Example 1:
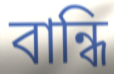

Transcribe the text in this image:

বান্ধি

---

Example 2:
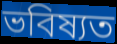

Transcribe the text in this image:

ভবিষ্যত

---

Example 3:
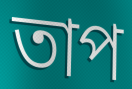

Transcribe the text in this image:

তাপ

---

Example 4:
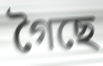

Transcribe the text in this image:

গৈছে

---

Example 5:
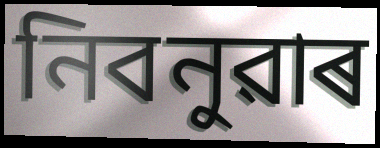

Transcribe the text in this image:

নিবনুৱাৰ